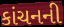
કાંચનની